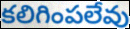
కలిగింపలేవు